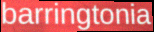
barringtonia